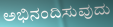
ಅಭಿನಂದಿಸುವುದು